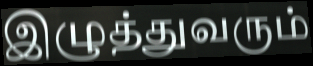
இழுத்துவரும்